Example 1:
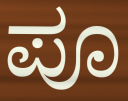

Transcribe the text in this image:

ಪೂ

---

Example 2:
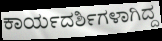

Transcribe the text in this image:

ಕಾರ್ಯದರ್ಶಿಗಳಾಗಿದ್ದ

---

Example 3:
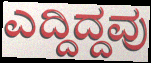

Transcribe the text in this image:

ಎದ್ದಿದ್ದವು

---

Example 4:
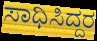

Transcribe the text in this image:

ಸಾಧಿಸಿದ್ದರ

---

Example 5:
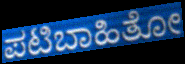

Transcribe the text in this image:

ಪಟಿಬಾಹಿತೋ